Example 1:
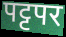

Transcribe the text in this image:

पट्टपर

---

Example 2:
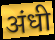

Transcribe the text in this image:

अंधी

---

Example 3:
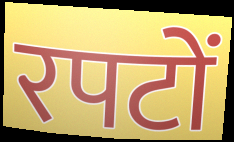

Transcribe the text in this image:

रपटों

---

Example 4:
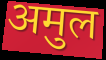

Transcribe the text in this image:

अमुल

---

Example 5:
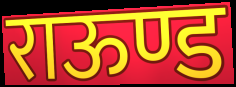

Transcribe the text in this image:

राऊण्ड